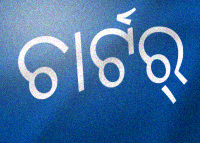
ଚାର୍ଟର୍